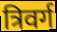
त्रिवर्ग